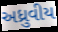
અધ્રુવીય